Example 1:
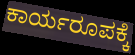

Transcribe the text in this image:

ಕಾರ್ಯರೂಪಕ್ಕೆ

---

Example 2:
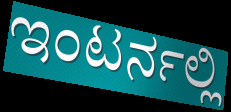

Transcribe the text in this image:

ಇಂಟರ್ನಲ್ಲಿ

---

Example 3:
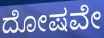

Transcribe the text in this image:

ದೋಷವೇ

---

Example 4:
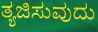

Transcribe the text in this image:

ತ್ಯಜಿಸುವುದು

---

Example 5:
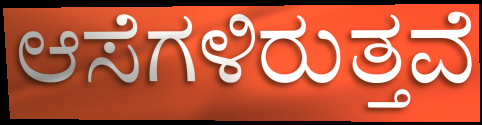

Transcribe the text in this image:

ಆಸೆಗಳಿರುತ್ತವೆ